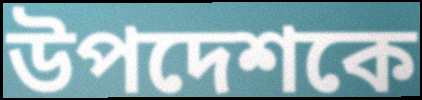
উপদেশকে